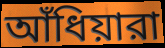
আঁধিয়ারা